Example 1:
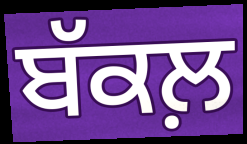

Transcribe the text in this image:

ਬੱਕਲ਼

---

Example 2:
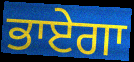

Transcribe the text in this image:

ਭਾਏਗਾ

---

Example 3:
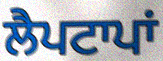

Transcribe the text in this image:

ਲੈਪਟਾਪਾਂ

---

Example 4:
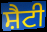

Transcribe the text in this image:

ਸ਼ੈਟੀ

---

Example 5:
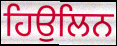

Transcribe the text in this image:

ਹਿਉਲਿਨ